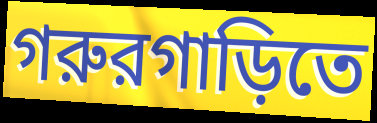
গরুরগাড়িতে